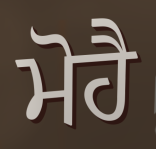
ਮੋਹੈ